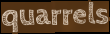
quarrels